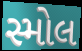
સ્મોલ